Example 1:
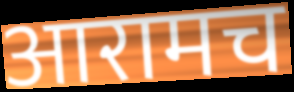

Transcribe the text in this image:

आरामच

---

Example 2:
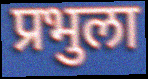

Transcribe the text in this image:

प्रभुला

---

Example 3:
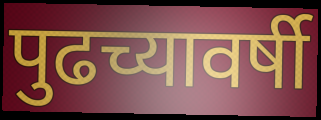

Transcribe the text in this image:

पुढच्यावर्षी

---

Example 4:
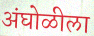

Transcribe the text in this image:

अंघोळीला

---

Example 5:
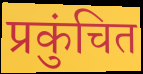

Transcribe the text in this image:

प्रकुंचित